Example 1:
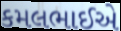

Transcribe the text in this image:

કમલભાઈએ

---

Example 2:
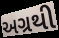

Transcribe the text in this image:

અગ્રથી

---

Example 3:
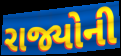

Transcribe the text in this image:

રાજ્યોની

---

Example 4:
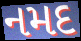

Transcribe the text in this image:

નમદ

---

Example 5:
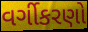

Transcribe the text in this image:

વર્ગીકરણો